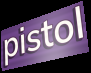
pistol